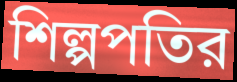
শিল্পপতির